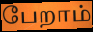
பேறாம்